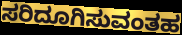
ಸರಿದೂಗಿಸುವಂತಹ